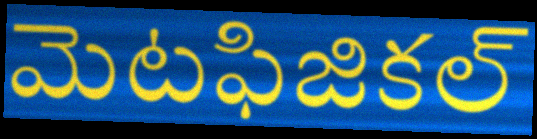
మెటఫిజికల్